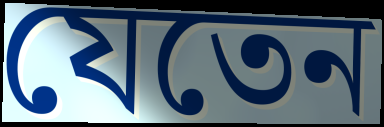
যেতেন